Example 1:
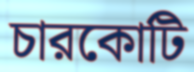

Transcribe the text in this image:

চারকোটি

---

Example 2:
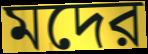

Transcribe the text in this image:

মদের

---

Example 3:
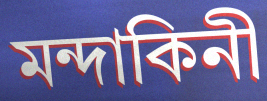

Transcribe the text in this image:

মন্দাকিনী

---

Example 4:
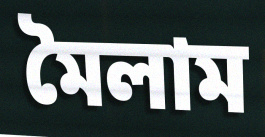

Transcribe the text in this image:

মৈলাম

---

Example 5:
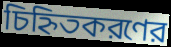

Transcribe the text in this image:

চিহ্নিতকরণের